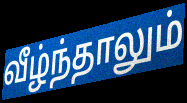
வீழ்ந்தாலும்